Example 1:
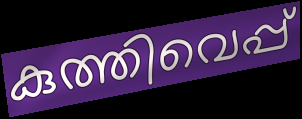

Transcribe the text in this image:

കുത്തിവെപ്പ്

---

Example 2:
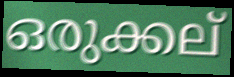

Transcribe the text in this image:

ഒരുക്കല്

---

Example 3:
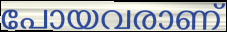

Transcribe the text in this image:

പോയവരാണ്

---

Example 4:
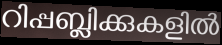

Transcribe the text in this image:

റിപ്പബ്ലിക്കുകളിൽ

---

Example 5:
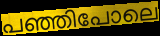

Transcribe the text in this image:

പഞ്ഞിപോലെ